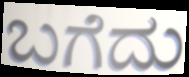
ಬಗೆದು